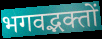
भगवद्भक्तों